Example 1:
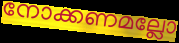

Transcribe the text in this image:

നോക്കണമല്ലോ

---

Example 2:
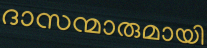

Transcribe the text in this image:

ദാസന്മാരുമായി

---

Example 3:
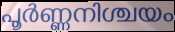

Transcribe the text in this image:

പൂർണ്ണനിശ്ചയം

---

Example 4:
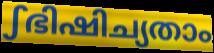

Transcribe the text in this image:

ഽഭിഷിച്യതാം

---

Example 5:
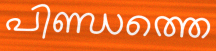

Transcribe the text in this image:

പിണ്ഡത്തെ